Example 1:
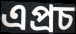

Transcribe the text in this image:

এপ্রচ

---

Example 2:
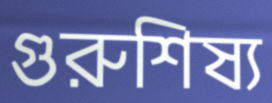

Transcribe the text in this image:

গুরুশিষ্য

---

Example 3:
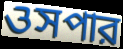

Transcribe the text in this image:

ওসপার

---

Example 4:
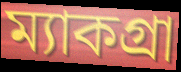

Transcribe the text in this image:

ম্যাকগ্রা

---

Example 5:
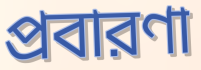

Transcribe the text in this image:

প্রবারণা